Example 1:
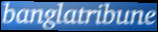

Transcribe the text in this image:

banglatribune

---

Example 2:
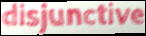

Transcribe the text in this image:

disjunctive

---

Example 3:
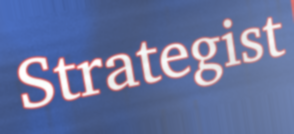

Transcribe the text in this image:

Strategist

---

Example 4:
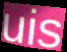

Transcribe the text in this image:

uis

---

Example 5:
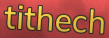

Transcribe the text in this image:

tithech